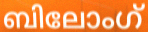
ബിലോംഗ്